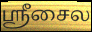
ஸ்ரீசைல